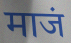
माजं